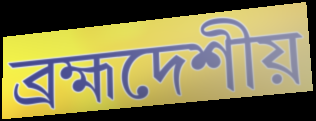
ব্রহ্মদেশীয়